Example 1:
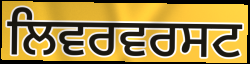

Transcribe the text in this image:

ਲਿਵਰਵਰਸਟ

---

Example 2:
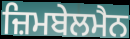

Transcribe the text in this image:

ਜ਼ਿਮਬੇਲਮੈਨ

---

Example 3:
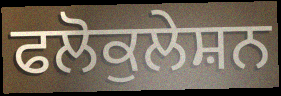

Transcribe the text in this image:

ਫਲੋਕੁਲੇਸ਼ਨ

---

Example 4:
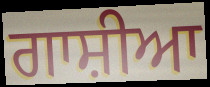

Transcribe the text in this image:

ਗਾਸ਼ੀਆ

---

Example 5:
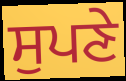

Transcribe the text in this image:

ਸੁਪਣੇ